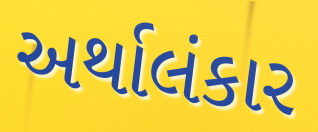
અર્થાલંકાર